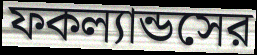
ফকল্যান্ডসের